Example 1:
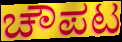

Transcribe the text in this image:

ಚೌಪಟ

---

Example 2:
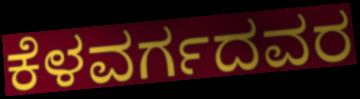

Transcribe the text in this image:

ಕೆಳವರ್ಗದವರ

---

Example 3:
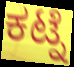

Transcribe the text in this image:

ಕಟ್ನೆ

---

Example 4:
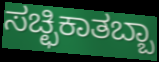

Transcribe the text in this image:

ಸಚ್ಛಿಕಾತಬ್ಬಾ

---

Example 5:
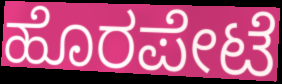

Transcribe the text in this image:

ಹೊರಪೇಟೆ